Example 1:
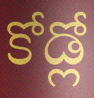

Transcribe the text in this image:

కోడ్లో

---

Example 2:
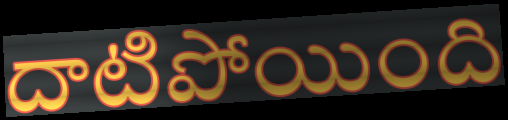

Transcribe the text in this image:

దాటిపోయింది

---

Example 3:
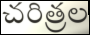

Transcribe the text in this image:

చరిత్రల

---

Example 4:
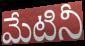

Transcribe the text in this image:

మేటినీ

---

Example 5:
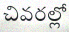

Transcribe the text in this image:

చివరల్లో